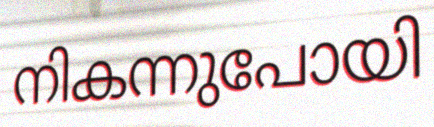
നികന്നുപോയി